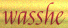
wasshe